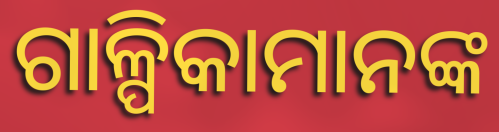
ଗାଳ୍ପିକାମାନଙ୍କ